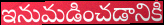
ఇనుమడించడానికి